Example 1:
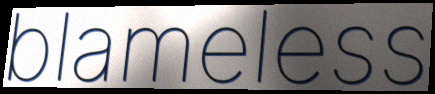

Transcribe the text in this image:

blameless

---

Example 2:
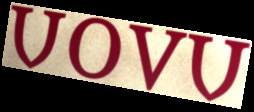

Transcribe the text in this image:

uovu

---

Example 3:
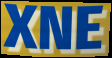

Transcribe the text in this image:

XNE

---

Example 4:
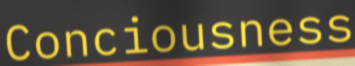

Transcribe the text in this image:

Conciousness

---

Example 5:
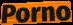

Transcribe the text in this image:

Porno